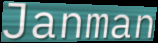
Janman